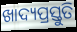
ଖାଦ୍ୟପ୍ରସ୍ତୁତି